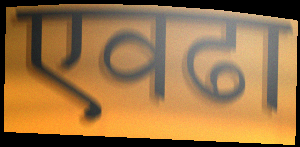
एवढा